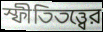
স্ফীতিতত্ত্বের